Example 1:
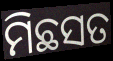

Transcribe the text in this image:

ମିଛସତ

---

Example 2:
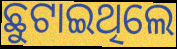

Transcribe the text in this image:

ଛୁଟାଇଥିଲେ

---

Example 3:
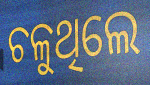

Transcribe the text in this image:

ଚଳୁଥିଲେ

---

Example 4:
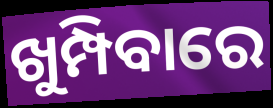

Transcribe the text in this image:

ଖୁମ୍ପିବାରେ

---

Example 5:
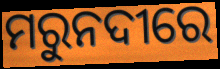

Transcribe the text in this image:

ମରୁନଦୀରେ